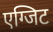
एग्जिट